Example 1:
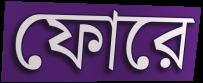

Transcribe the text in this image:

ফোরে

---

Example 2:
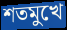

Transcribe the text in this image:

শতমুখে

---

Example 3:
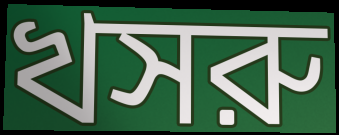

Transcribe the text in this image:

খসরু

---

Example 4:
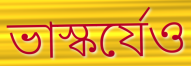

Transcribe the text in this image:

ভাস্কর্যেও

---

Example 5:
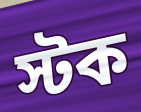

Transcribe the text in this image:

স্টক